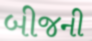
બીજની